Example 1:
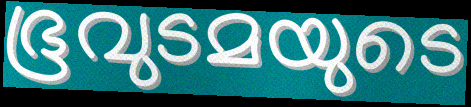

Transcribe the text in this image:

ഭൂവുടമയുടെ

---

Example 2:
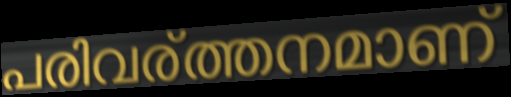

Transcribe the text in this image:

പരിവര്ത്തനമാണ്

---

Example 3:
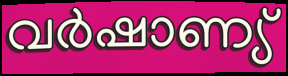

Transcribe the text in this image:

വർഷാണ്യ്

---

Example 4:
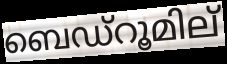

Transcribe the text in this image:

ബെഡ്റൂമില്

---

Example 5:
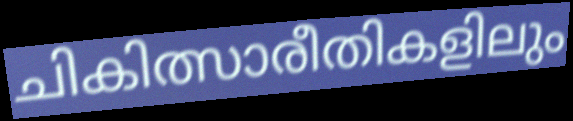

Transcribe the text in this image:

ചികിത്സാരീതികളിലും